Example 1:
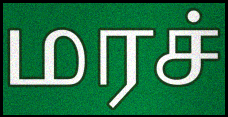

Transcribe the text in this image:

மரச்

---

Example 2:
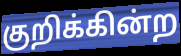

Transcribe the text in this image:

குறிக்கின்ற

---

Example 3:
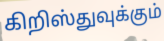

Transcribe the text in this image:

கிறிஸ்துவுக்கும்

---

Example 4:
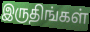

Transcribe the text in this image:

இருதிங்கள்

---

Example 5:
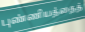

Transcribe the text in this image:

புண்ணியத்தைத்